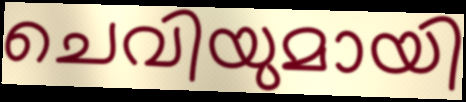
ചെവിയുമായി